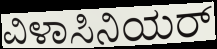
ವಿಳಾಸಿನಿಯರ್